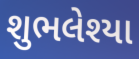
શુભલેશ્યા